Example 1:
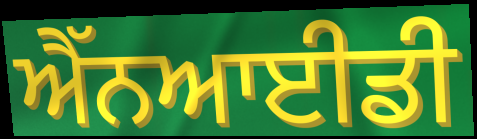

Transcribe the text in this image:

ਐੱਨਆਈਡੀ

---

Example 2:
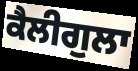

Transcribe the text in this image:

ਕੈਲੀਗੁਲਾ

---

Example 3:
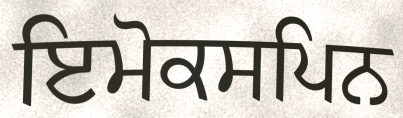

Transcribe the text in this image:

ਇਮੋਕਸਪਿਨ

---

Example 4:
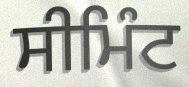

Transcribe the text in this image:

ਸੀਮਿੰਟ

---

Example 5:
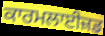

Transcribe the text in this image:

ਕਾਰਮਲਾਈਜ਼ਡ